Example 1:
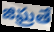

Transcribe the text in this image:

జిఘ్రతే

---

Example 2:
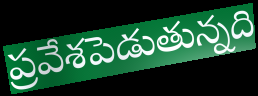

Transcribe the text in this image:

ప్రవేశపెడుతున్నది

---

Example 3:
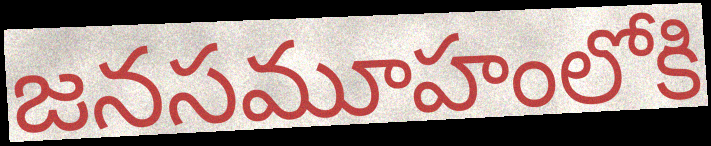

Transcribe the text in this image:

జనసమూహంలోకి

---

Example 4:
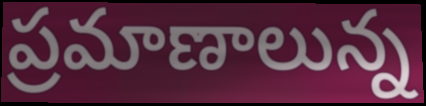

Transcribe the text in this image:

ప్రమాణాలున్న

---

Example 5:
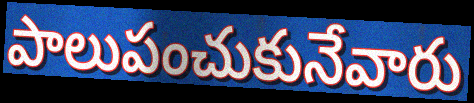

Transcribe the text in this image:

పాలుపంచుకునేవారు